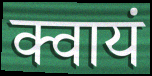
क्वायं